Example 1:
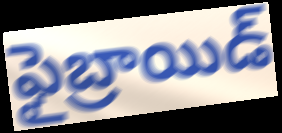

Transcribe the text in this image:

ఫైబ్రాయిడ్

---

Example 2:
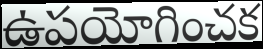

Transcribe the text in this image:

ఉపయోగించక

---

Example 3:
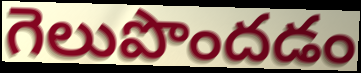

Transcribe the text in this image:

గెలుపొందడం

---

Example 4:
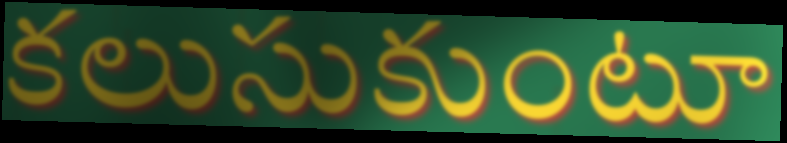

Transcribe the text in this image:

కలుసుకుంటూ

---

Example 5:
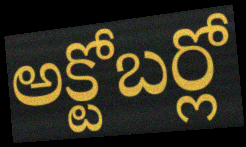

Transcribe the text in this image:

అక్టోబర్లో